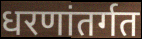
धरणांतर्गत